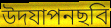
উদযাপনছবি